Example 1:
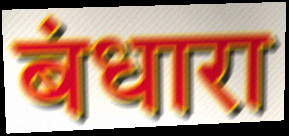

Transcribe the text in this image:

बंधारा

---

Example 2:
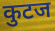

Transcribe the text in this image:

कुटज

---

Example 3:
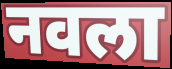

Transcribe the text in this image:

नवला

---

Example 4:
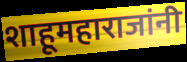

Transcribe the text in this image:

शाहूमहाराजांनी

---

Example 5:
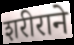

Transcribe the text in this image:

शरीराने